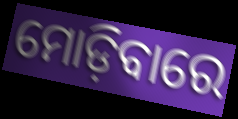
ମୋଡ଼ିବାରେ